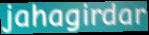
jahagirdar